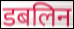
डबलिन